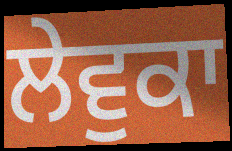
ਲੇਵੁਕਾ